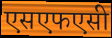
एसएफएसी